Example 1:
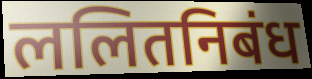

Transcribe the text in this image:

ललितनिबंध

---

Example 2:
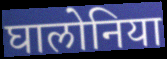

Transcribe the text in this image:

घालोनिया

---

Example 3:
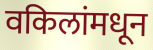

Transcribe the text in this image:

वकिलांमधून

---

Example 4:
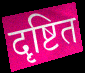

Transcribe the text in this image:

दृष्टित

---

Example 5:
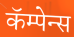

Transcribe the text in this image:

कॅम्पेन्स